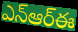
ఎన్ఆర్ఈ